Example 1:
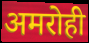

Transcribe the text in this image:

अमरोही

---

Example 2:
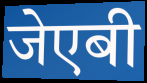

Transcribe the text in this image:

जेएबी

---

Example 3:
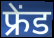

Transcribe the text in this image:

फ्रेंड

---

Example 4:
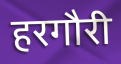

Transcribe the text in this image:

हरगौरी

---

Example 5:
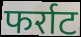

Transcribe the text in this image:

फर्राट